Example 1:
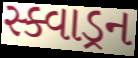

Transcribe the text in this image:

સ્ક્વાડ્રન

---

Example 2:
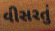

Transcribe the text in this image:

વીસરતું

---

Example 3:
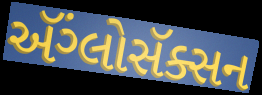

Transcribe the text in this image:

ઍંગ્લોસૅક્સન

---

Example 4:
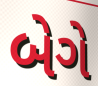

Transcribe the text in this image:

બેગે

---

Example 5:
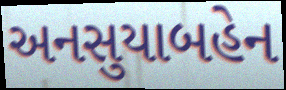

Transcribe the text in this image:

અનસુયાબહેન